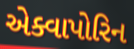
એક્વાપોરિન